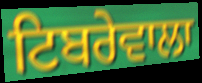
ਟਿਬਰੇਵਾਲਾ